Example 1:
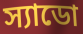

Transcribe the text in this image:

স্যাডো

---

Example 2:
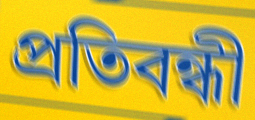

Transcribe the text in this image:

প্রতিবন্ধী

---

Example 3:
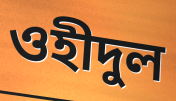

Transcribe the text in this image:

ওহীদুল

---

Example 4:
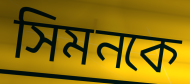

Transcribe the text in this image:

সিমনকে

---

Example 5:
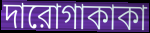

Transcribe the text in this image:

দারোগাকাকা